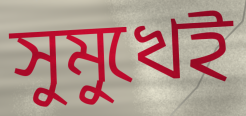
সুমুখেই